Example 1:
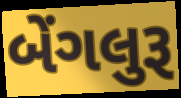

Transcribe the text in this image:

બેંગલુરૂ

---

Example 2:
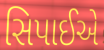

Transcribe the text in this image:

સિપાઈએ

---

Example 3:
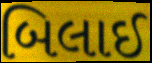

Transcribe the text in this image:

બિલાઈ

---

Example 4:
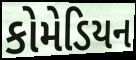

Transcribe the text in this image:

કોમેડિયન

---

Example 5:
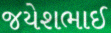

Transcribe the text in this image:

જયેશભાઈ